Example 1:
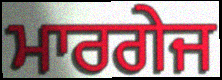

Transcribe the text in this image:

ਮਾਰਗੇਜ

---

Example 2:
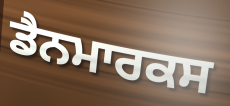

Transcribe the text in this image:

ਡੈਨਮਾਰਕਸ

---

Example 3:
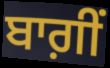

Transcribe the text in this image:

ਬਾਗ਼ੀਂ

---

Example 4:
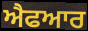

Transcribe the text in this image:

ਐਫਆਰ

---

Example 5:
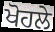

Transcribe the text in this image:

ਖੋਹਲੇ